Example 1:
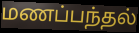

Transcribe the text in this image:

மணப்பந்தல்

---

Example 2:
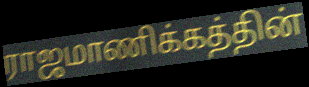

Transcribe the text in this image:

ராஜமாணிக்கத்தின்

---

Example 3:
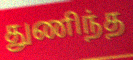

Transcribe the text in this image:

துணிந்த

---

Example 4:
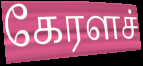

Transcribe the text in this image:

கேரளச்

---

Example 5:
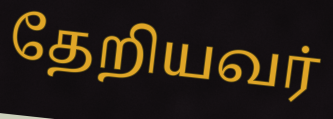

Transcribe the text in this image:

தேறியவர்